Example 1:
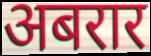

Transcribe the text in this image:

अबरार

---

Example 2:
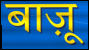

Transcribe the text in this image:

बाज़ू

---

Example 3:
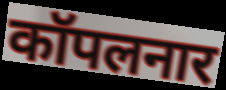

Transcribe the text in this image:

कॉपलनार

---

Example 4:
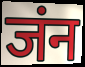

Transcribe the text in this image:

जंन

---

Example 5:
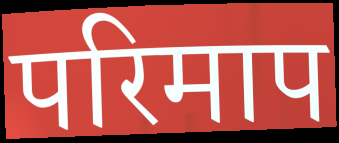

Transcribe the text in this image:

परिमाप